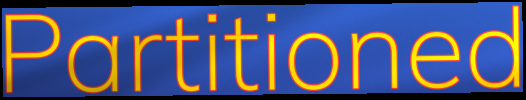
Partitioned